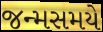
જન્મસમયે